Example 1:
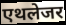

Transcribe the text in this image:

एथलेजर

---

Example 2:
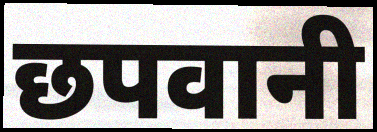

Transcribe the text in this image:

छपवानी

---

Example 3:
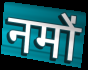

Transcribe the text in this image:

नमो॑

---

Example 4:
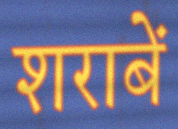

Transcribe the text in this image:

शराबें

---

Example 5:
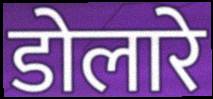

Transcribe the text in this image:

डोलारे